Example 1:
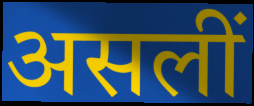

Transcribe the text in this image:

असलीं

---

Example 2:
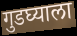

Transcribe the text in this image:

गुडघ्याला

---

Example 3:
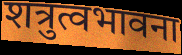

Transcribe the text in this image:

शत्रुत्वभावना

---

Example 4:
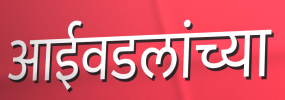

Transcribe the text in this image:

आईवडलांच्या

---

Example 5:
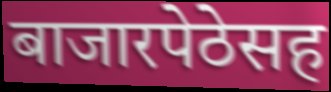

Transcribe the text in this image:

बाजारपेठेसह